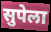
सुपेला